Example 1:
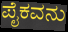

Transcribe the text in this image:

ಪೈಕವನು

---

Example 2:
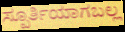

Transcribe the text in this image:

ಸ್ಪೂರ್ತಿಯಾಗಬಲ್ಲ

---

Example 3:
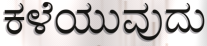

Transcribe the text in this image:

ಕಳೆಯುವುದು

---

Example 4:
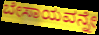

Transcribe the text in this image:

ಬೇಸಾಯವನ್ನೇ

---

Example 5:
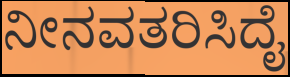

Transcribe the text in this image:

ನೀನವತರಿಸಿದೈ